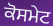
ਕੋਸਮੇਟ